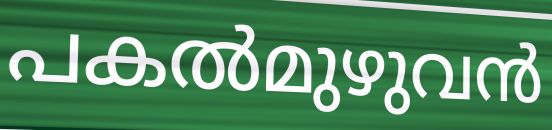
പകൽമുഴുവൻ